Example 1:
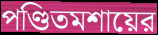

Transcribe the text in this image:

পণ্ডিতমশায়ের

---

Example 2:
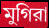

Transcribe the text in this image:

মুগিরা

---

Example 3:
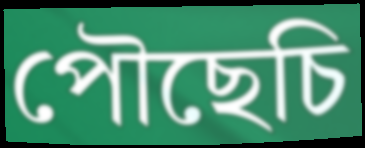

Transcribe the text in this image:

পৌছেচি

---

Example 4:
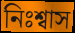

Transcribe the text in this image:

নিঃশ্বাস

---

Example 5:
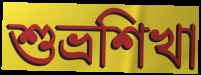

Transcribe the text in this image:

শুভ্রশিখা